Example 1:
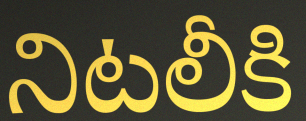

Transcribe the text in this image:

నిటలీకి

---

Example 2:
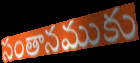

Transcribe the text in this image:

సంతానముకు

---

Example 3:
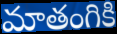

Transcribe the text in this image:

మాతంగికి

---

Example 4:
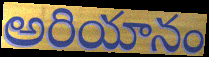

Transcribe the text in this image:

అరియానం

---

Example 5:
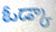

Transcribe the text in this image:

ఓడ్కా